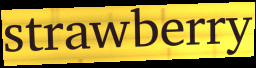
strawberry